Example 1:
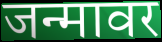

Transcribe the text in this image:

जन्मावर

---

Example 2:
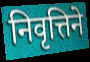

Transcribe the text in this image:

निवृत्तिने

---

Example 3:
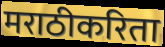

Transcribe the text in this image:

मराठीकरिता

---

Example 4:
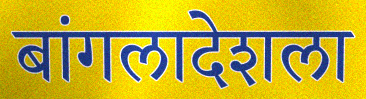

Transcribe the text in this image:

बांगलादेशला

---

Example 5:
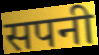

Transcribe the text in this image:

सपनी